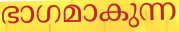
ഭാഗമാകുന്ന